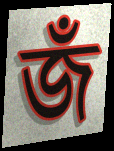
জঁ